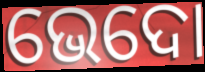
ଭେଦୋ